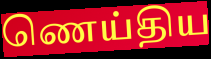
ணெய்திய